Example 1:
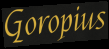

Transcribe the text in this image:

Goropius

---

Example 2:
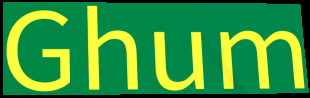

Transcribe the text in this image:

Ghum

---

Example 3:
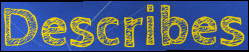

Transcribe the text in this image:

Describes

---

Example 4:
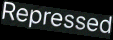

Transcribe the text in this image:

Repressed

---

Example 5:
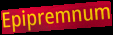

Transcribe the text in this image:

Epipremnum